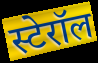
स्टेरॉल